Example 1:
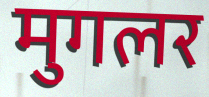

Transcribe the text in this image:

मुगलर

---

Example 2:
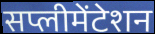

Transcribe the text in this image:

सप्लीमेंटेशन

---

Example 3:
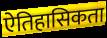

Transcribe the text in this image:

ऐतिहासिकता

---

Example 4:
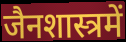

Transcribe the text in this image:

जैनशास्त्रमें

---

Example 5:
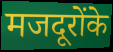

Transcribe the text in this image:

मजदूरोंके